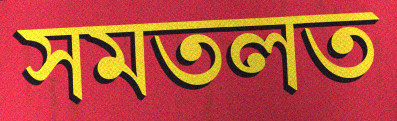
সমতলত